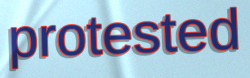
protested